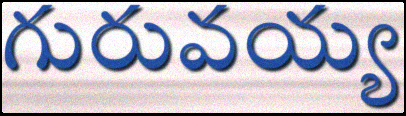
గురువయ్య